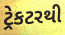
ટ્રેકટરથી